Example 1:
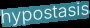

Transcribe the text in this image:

hypostasis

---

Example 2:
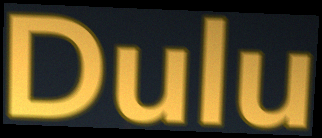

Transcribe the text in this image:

Dulu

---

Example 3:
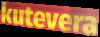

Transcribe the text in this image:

kutevera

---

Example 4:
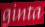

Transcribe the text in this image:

ginta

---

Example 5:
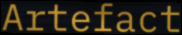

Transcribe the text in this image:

Artefact